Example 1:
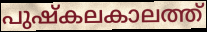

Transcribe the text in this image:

പുഷ്കലകാലത്ത്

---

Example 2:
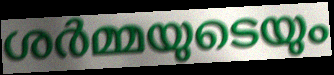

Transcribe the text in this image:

ശർമ്മയുടെയും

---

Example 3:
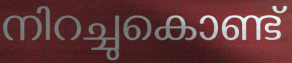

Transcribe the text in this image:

നിറച്ചുകൊണ്ട്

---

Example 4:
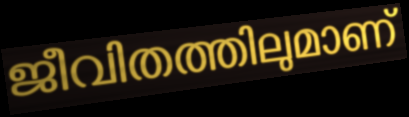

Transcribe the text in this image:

ജീവിതത്തിലുമാണ്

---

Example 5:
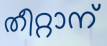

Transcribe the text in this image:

തീറ്റാന്